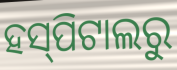
ହସ୍‌ପିଟାଲରୁ